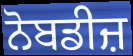
ਨੋਬਡੀਜ਼